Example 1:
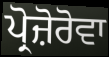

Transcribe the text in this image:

ਪ੍ਰੋਜ਼ੋਰੋਵਾ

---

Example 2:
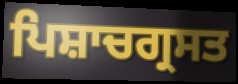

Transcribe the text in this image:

ਪਿਸ਼ਾਚਗ੍ਰਸਤ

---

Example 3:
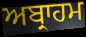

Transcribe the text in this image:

ਅਬ੍ਰਾਹਮ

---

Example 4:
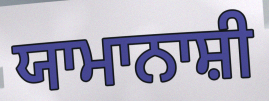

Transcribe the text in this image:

ਯਾਮਾਨਾਸ਼ੀ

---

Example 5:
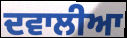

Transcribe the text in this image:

ਦਵਾਲੀਆ